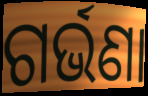
ଗର୍ଭଣା